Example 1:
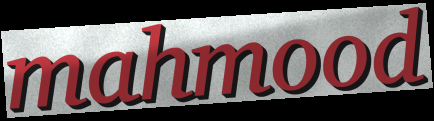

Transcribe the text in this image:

mahmood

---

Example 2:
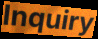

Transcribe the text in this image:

Inquiry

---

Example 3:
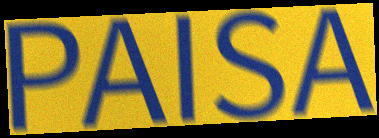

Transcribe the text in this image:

PAISA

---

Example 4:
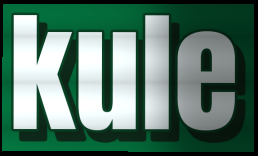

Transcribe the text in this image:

kule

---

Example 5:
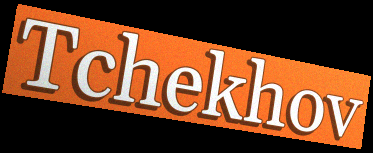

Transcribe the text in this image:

Tchekhov